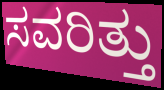
ಸವರಿತ್ತು